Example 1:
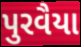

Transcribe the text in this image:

પુરવૈયા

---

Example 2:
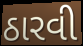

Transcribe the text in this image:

ઠારવી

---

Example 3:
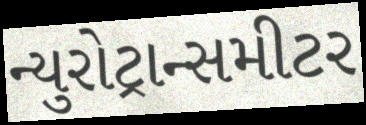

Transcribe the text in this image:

ન્યુરોટ્રાન્સમીટર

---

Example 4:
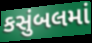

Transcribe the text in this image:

કસુંબલમાં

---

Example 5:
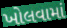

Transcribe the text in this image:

ખોલવામાં